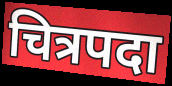
चित्रपदा